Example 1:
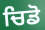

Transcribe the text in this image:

ਚਿਡੋ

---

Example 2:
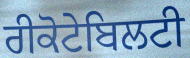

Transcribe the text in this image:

ਰੀਕੋਟੇਬਿਲਟੀ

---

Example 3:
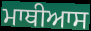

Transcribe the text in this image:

ਮਾਥੀਆਸ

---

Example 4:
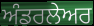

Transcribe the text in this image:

ਅੰਡਰਲੇਅਰ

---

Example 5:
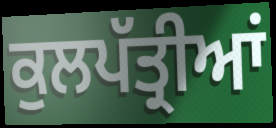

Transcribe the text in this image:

ਕੁਲਪੱਤ੍ਰੀਆਂ